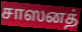
சாஸனத்